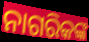
ନାଗରିକଙ୍କ